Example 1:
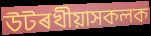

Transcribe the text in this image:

উটৰখীয়াসকলক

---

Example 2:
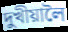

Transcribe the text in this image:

দুখীয়ালৈ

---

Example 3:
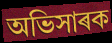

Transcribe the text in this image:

অভিসাৰক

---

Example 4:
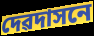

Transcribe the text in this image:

দেৱদাসনে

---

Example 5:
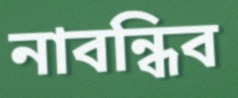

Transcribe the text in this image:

নাবন্ধিব